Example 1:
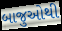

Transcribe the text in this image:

બાજુઓથી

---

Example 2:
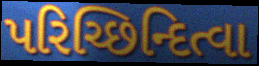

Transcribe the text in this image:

પરિચ્છિન્દિત્વા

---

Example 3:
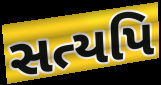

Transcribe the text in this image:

સત્યપિ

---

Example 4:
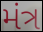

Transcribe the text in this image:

મંત્ર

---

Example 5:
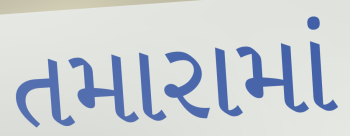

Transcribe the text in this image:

તમારામાં